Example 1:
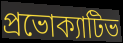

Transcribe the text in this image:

প্রভোক্যাটিভ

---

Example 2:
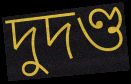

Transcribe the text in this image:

দুদণ্ড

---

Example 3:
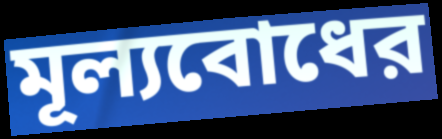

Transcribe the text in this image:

মূল্যবোধের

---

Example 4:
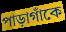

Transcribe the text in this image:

পাড়াগাঁকে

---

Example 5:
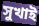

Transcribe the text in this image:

সুখাই